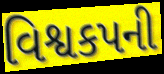
વિશ્વકપની